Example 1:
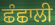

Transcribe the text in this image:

ਛੰਛਾਲੀ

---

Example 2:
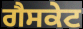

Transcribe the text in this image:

ਗੈਸਕੇਟ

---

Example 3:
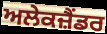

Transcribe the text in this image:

ਅਲੇਕਜ਼ੈਂਡਰ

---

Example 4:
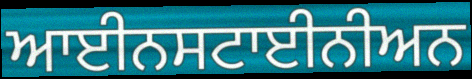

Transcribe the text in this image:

ਆਈਨਸਟਾਈਨੀਅਨ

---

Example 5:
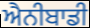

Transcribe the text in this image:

ਐਨੀਬਾਡੀ